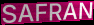
SAFRAN